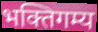
भक्तिगम्य